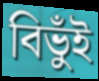
বিভুঁই